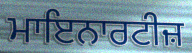
ਮਾਇਨਾਰਟੀਜ਼